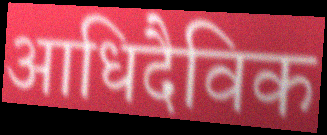
आधिदैविक